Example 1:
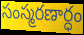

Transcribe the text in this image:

సంస్మరణార్ధం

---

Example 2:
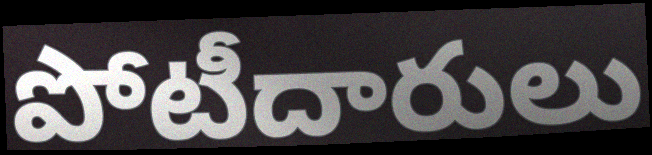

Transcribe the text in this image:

పోటీదారులు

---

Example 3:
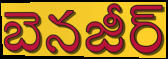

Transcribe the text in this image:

బెనజీర్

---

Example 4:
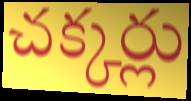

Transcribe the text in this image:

చక్కర్లు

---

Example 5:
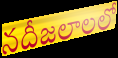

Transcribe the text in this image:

నదీజలాలలో